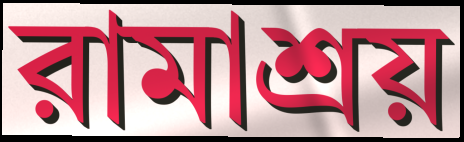
রামাশ্রয়